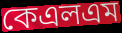
কেএলএম